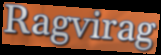
Ragvirag